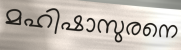
മഹിഷാസുരനെ